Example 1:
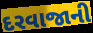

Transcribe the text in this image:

દરવાજાની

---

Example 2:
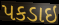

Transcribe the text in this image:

પકડાઇ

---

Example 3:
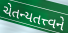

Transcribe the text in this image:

ચેતન્યતત્ત્વને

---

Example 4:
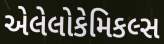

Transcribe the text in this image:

એલેલોકેમિકલ્સ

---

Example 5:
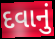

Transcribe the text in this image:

દવાનું